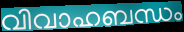
വിവാഹബന്ധം